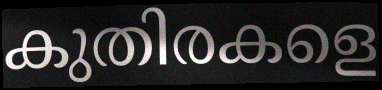
കുതിരകളെ